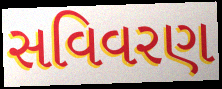
સવિવરણ